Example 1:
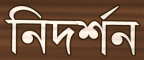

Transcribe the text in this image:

নিদৰ্শন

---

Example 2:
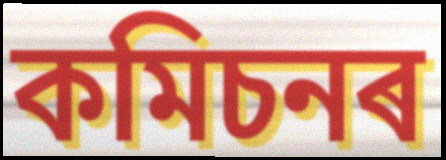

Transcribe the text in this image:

কমিচনৰ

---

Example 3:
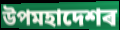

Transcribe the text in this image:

উপমহাদেশৰ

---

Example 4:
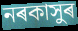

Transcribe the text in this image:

নৰকাসুৰ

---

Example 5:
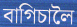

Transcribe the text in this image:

বাগিচালৈ